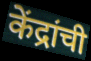
केंद्रांची